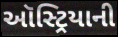
ઑસ્ટ્રિયાની